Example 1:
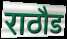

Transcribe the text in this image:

राठौड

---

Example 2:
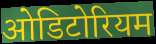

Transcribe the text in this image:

ओडिटोरियम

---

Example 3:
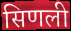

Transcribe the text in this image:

सिणली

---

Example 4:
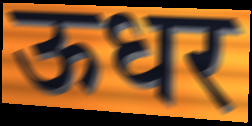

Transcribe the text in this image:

ऊधर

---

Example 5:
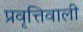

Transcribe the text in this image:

प्रवृत्तिवाली